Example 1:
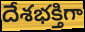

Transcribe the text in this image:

దేశభక్తిగా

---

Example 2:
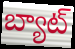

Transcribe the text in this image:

బ్యాట్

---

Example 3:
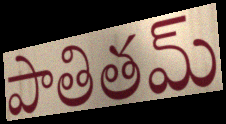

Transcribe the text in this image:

పాతితమ్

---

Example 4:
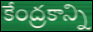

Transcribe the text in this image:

కేంద్రకాన్ని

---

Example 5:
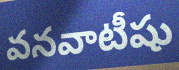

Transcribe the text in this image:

వనవాటీషు